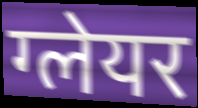
ग्लेयर